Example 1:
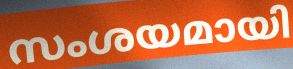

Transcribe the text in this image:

സംശയമായി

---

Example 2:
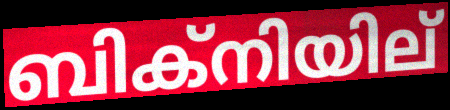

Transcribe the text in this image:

ബിക്നിയില്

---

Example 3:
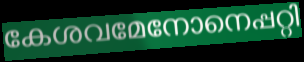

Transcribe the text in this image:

കേശവമേനോനെപ്പറ്റി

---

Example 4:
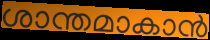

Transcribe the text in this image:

ശാന്തമാകാൻ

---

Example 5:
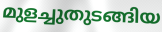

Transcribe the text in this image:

മുളച്ചുതുടങ്ങിയ